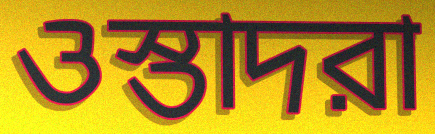
ওস্তাদরা